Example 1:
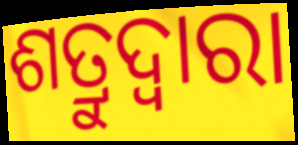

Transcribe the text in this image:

ଶତ୍ରୁଦ୍ଵାରା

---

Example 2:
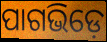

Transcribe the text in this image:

ପାଗଭିଡ଼େ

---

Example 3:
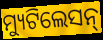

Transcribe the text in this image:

ମ୍ୟୁଟିଲେସନ୍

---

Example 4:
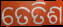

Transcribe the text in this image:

ତେତିଶ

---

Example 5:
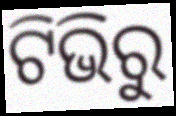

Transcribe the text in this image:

ଟିଭିରୁ